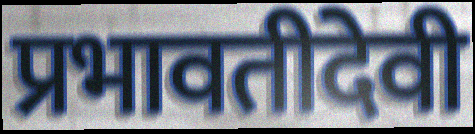
प्रभावतीदेवी